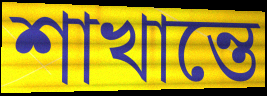
শাখান্তে